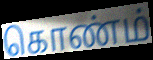
கொண்ம்